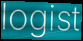
logist